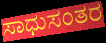
ಸಾಧುಸಂತರ